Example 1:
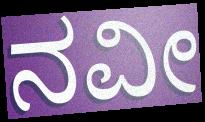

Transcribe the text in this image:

ನವೀ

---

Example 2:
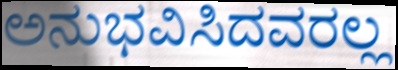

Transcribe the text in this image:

ಅನುಭವಿಸಿದವರಲ್ಲ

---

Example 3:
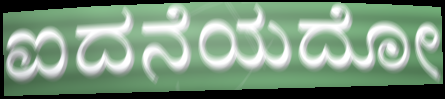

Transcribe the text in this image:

ಐದನೆಯದೋ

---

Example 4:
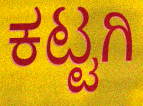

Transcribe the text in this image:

ಕಟ್ಟಗಿ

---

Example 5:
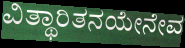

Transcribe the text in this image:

ವಿತ್ಥಾರಿತನಯೇನೇವ